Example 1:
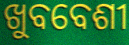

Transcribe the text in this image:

ଖୁବବେଶୀ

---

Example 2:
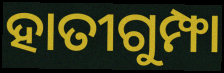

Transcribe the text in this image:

ହାତୀଗୁମ୍ଫା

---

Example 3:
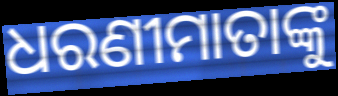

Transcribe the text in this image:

ଧରଣୀମାତାଙ୍କୁ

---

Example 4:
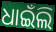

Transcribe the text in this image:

ଧାଇଁଲି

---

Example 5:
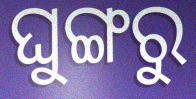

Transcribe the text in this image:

ଘୁଙ୍ଗରୁ